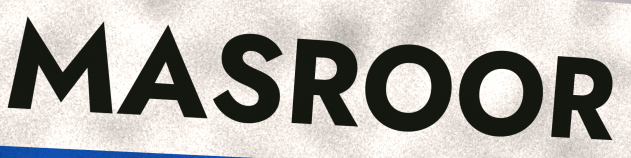
MASROOR